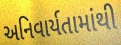
અનિવાર્યતામાંથી